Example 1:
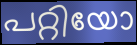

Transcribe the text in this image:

പറ്റിയോ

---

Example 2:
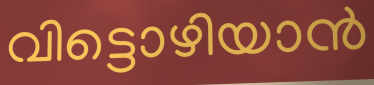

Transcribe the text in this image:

വിട്ടൊഴിയാൻ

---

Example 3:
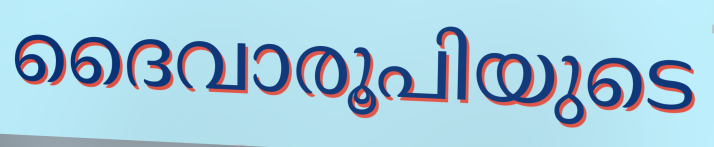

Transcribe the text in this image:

ദൈവാരൂപിയുടെ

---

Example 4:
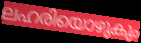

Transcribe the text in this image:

ലഹരിയൊഴുകും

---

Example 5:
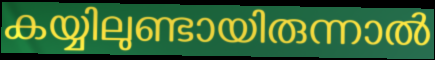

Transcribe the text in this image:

കയ്യിലുണ്ടായിരുന്നാൽ